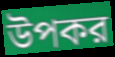
উপকর